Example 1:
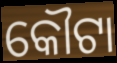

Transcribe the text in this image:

କୌଟା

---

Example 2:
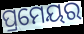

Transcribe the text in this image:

ପ୍ରମେୟର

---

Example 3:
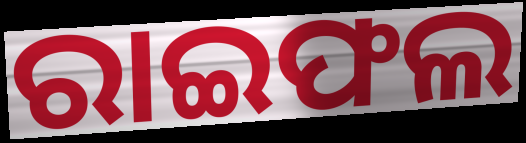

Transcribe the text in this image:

ରାଇଫଲ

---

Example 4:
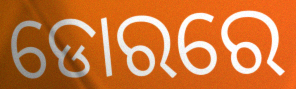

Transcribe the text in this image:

ଡୋରରେ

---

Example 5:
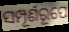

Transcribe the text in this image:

ସମ୍ପୂର୍ଣରୂପେ